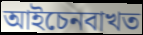
আইচেনবাখত